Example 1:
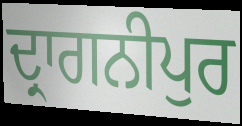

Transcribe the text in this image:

ਦ੍ਰਾਗਨੀਪੁਰ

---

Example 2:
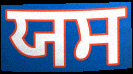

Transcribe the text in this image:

ਯਸ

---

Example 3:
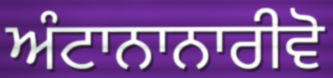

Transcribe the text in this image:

ਅੰਟਾਨਾਨਾਰੀਵੋ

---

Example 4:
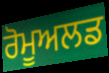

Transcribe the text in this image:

ਰੋਮੂਅਲਡ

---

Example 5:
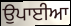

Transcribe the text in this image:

ਉਪਾਈਆ